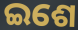
ଇଶେ